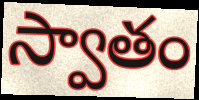
స్వాతం